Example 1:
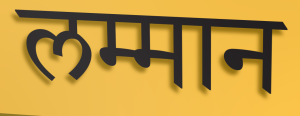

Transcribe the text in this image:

लम्मान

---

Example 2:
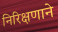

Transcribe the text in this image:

निरिक्षणाने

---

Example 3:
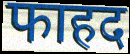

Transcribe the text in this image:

फाहद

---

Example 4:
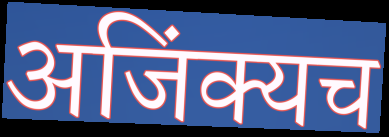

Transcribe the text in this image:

अजिंक्यच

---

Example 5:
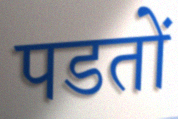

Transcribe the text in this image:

पडतों